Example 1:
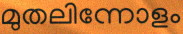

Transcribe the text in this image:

മുതലിന്നോളം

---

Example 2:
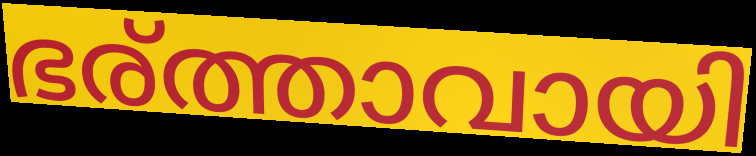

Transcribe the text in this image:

ഭര്ത്താവായി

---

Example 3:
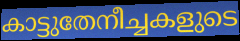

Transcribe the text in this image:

കാട്ടുതേനീച്ചകളുടെ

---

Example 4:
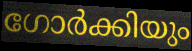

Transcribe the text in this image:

ഗോർക്കിയും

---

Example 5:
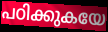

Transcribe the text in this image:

പഠിക്കുകയേ